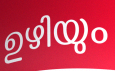
ഉഴിയും